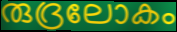
രുദ്രലോകം